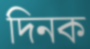
দিনক